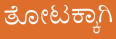
ತೋಟಕ್ಕಾಗಿ